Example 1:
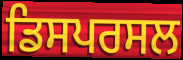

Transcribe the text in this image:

ਡਿਸਪਰਸਲ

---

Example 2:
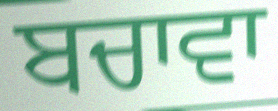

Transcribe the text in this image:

ਬਚਾਵਾ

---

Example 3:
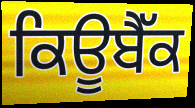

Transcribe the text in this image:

ਕਿਊਬੈੱਕ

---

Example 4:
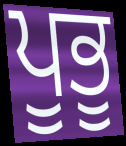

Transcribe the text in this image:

ਪੂਭੂ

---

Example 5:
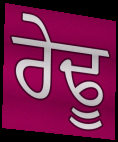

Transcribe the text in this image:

ਰੇਢੂ